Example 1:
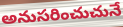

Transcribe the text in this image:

అనుసరించుచునే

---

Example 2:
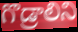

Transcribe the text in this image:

గొడ్రాలిని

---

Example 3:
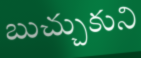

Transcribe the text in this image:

బుచ్చుకుని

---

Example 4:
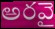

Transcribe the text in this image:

అరవై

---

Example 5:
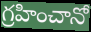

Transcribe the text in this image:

గ్రహించానో